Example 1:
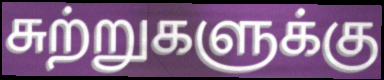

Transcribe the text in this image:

சுற்றுகளுக்கு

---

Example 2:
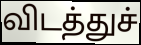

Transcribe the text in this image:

விடத்துச்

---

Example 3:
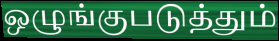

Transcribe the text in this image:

ஒழுங்குபடுத்தும்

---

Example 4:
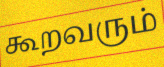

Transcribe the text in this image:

கூறவரும்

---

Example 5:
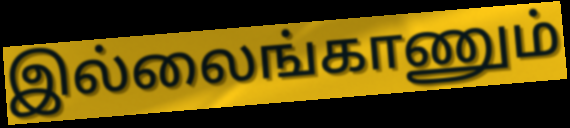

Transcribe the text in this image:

இல்லைங்காணும்